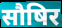
सौषिर